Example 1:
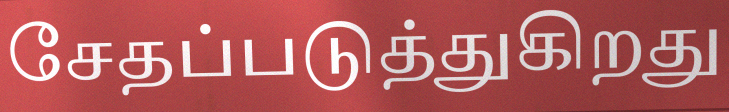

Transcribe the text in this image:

சேதப்படுத்துகிறது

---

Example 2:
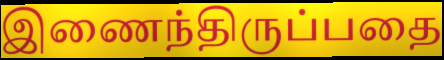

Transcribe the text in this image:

இணைந்திருப்பதை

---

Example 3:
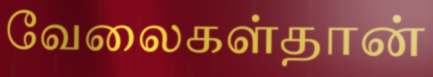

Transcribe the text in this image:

வேலைகள்தான்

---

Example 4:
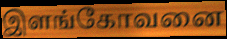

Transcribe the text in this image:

இளங்கோவனை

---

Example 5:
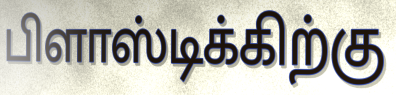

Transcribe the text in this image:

பிளாஸ்டிக்கிற்கு